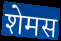
शेमस